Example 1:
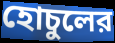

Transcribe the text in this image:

হোচুলের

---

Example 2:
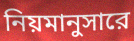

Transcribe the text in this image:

নিয়মানুসারে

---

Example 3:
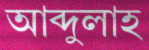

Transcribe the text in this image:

আব্দুলাহ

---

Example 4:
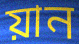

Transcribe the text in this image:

য়ান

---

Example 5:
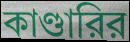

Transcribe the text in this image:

কাণ্ডারির